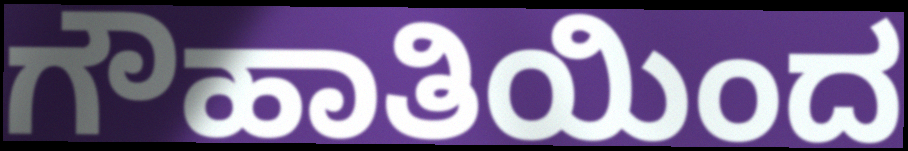
ಗೌಹಾತಿಯಿಂದ